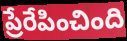
ప్రేరేపించింది